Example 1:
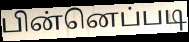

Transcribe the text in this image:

பின்னெப்படி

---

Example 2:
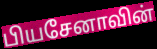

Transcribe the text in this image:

பியசேனாவின்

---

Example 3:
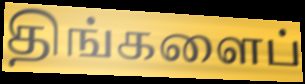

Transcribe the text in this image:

திங்களைப்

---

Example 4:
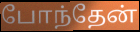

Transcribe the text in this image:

போந்தேன்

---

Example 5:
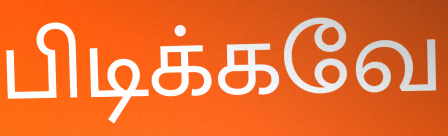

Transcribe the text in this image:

பிடிக்கவே